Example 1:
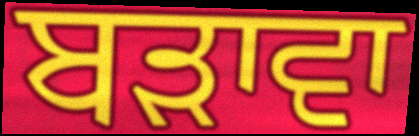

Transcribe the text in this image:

ਬੜਾਵਾ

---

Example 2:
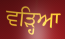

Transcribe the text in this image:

ਵੜ੍ਹਿਆ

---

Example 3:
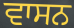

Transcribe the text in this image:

ਵਾਸਨ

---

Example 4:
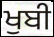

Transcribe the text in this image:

ਖੁਬੀ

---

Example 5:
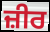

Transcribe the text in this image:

ਜ਼ੀਰ